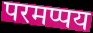
परमप्पय